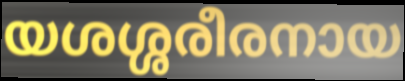
യശശ്ശരീരനായ